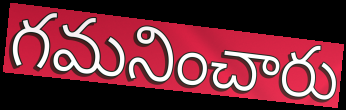
గమనించారు